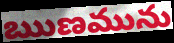
ఋణమును